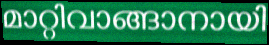
മാറ്റിവാങ്ങാനായി